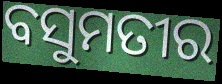
ବସୁମତୀର